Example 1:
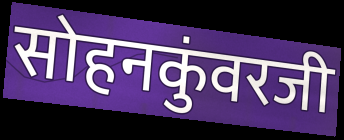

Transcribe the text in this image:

सोहनकुंवरजी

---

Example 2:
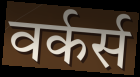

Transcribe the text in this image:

वर्कर्स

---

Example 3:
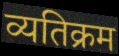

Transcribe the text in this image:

व्यतिक्रम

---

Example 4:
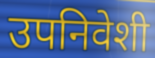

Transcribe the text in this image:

उपनिवेशी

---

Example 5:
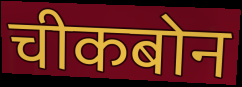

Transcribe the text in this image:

चीकबोन